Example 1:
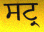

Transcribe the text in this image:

ਸਟ੍ਰ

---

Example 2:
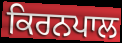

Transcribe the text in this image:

ਕਿਰਨਪਾਲ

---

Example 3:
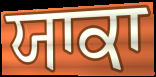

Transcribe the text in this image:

ਯਾਕਾ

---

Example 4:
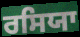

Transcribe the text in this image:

ਰਸਿਯਾ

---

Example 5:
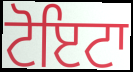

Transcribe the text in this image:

ਟੋਇਟਾ